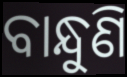
ବାନ୍ଧୁଣି